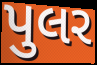
પુલર